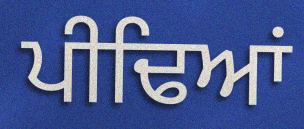
ਪੀਢਿਆਂ